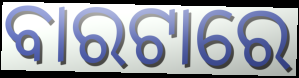
ବାରଟାରେ